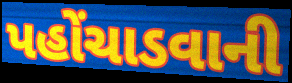
પહોંચાડવાની